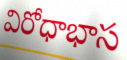
విరోధాభాస